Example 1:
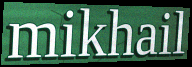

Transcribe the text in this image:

mikhail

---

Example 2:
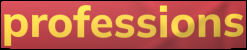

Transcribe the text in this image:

professions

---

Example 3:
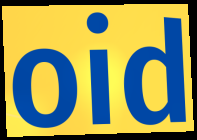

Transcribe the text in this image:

oid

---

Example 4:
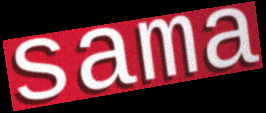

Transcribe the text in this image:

sama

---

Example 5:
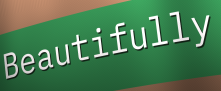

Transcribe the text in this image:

Beautifully